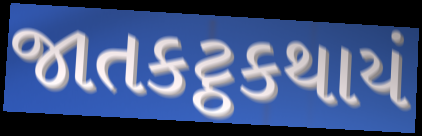
જાતકટ્ઠકથાયં